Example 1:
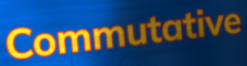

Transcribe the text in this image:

Commutative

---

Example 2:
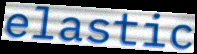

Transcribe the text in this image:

elastic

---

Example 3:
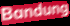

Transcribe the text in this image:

Bandung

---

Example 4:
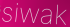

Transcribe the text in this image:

siwak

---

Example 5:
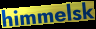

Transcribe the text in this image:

himmelsk